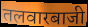
तलवारबाजी